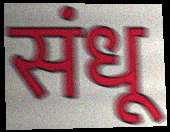
संधू